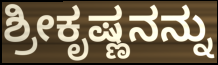
ಶ್ರೀಕೃಷ್ಣನನ್ನು